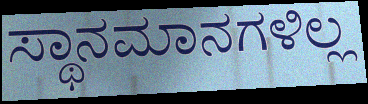
ಸ್ಥಾನಮಾನಗಳಿಲ್ಲ